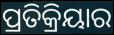
ପ୍ରତିକ୍ରିୟାର